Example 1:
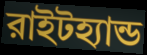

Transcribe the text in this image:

রাইটহ্যান্ড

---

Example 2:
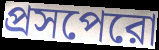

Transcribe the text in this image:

প্রসপেরো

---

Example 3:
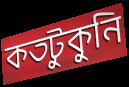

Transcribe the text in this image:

কতটুকুনি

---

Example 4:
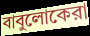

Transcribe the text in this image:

বাবুলোকেরা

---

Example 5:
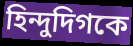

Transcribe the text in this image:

হিন্দুদিগকে